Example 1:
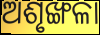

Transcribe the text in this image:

ଅଶୃଙ୍ଖଳା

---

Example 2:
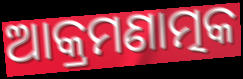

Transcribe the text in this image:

ଆକ୍ରମଣାତ୍ମକ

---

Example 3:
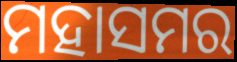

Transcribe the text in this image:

ମହାସମର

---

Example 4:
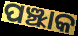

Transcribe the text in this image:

ପଞ୍ଝାକ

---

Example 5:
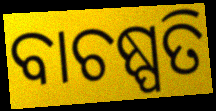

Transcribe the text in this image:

ବାଚଷ୍ପତି